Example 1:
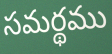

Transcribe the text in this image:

సమర్థము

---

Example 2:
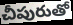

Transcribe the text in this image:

చీపురుతో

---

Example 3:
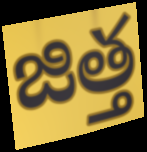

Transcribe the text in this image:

జిత్త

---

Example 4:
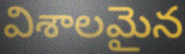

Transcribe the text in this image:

విశాలమైన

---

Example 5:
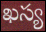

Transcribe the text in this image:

ఖస్య